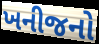
ખનીજનો